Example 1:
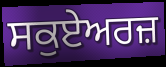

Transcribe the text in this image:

ਸਕੁਏਅਰਜ਼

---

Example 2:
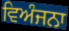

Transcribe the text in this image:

ਵਿਅੰਜਨਾ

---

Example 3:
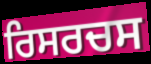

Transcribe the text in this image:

ਰਿਸਰਚਸ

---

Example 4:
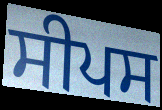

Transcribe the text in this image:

ਸੀਪਸ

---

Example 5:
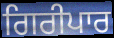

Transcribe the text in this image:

ਗਿਰੀਪਾਰ